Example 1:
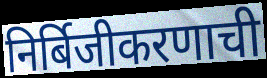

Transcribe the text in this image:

निर्बिजीकरणाची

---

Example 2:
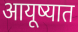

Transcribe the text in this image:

आयूष्यात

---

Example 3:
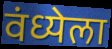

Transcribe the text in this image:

वंध्येला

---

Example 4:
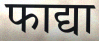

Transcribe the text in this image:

फाद्या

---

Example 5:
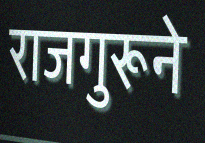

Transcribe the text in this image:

राजगुरूने